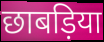
छाबड़िया